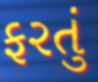
ફરતું